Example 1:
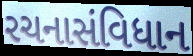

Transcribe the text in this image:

રચનાસંવિધાન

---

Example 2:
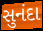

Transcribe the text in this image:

સુનંદા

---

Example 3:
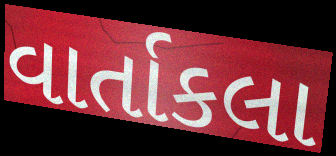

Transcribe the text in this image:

વાર્તાકલા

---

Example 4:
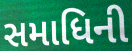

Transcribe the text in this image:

સમાધિની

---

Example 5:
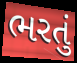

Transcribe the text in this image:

ભરતું